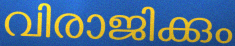
വിരാജിക്കും